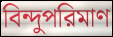
বিন্দুপরিমাণ